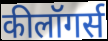
कीलॉगर्स